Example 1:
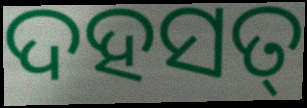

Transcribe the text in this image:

ଦହସତ୍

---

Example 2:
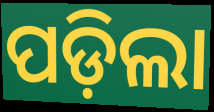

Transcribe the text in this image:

ପଡ଼ିଲା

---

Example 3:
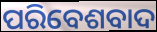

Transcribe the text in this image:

ପରିବେଶବାଦ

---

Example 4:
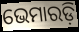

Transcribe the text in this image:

ଭେମାରଡ଼ି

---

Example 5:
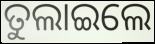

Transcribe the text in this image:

ତୁଲାଇଲେ